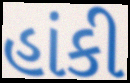
હાંકી